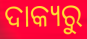
ଦାକ୍ୟରୁ